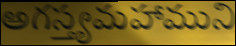
అగస్త్యమహాముని